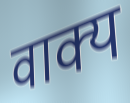
वाक्य